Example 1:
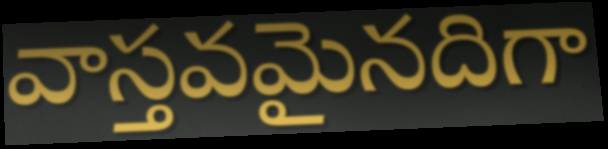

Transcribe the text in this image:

వాస్తవమైనదిగా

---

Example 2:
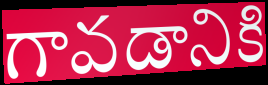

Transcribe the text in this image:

గావడానికి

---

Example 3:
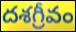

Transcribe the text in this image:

దశగ్రీవం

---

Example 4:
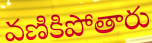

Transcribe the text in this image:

వణికిపోతారు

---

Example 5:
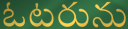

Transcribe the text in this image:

ఓటరును